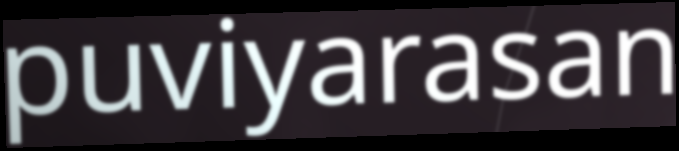
puviyarasan